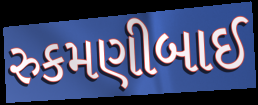
રુકમણીબાઈ